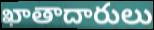
ఖాతాదారులు